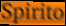
Spirito